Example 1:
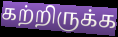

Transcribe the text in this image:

கற்றிருக்க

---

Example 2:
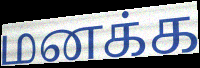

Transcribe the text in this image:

மனக்க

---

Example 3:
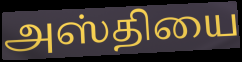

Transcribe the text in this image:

அஸ்தியை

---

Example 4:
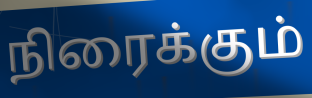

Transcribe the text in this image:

நிரைக்கும்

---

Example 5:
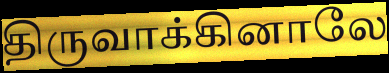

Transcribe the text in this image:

திருவாக்கினாலே